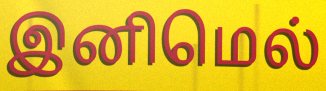
இனிமெல்